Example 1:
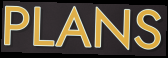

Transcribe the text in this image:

PLANS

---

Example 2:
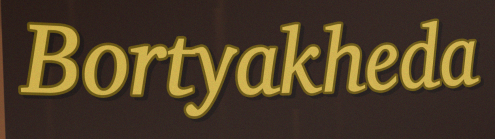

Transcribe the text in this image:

Bortyakheda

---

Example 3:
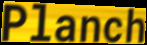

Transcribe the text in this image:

Planch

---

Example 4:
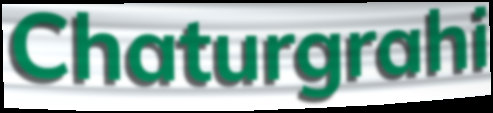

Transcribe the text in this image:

Chaturgrahi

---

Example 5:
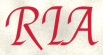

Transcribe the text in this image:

RIA